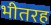
भीतरह